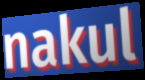
nakul